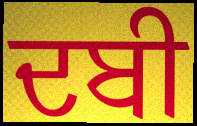
ਦਬੀ